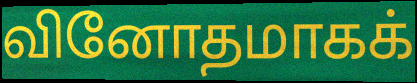
வினோதமாகக்